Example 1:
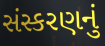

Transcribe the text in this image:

સંસ્કરણનું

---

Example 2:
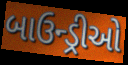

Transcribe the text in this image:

બાઉન્ડ્રીઓ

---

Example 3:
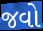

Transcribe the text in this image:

જવો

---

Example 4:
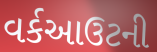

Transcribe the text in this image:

વર્કઆઉટની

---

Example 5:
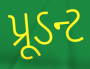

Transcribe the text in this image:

પ્રૂડન્ટ